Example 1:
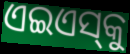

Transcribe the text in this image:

ଏଇଏସ୍‌କୁ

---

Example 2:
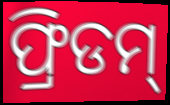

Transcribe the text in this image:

ଫ୍ରିଡମ୍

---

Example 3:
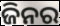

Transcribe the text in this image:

ଜିନର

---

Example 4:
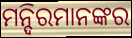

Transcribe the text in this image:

ମନ୍ଦିରମାନଙ୍କର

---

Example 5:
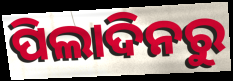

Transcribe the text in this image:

ପିଲାଦିନରୁ